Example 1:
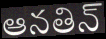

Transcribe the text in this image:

ఆనతిన్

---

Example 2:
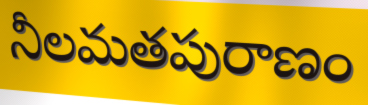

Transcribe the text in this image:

నీలమతపురాణం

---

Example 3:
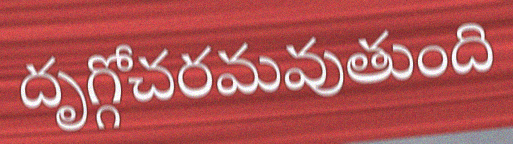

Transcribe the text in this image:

దృగ్గోచరమవుతుంది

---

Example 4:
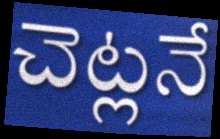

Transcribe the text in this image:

చెట్లనే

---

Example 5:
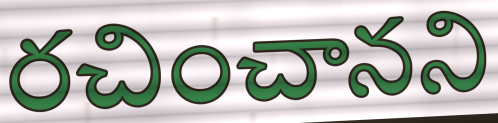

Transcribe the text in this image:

రచించానని